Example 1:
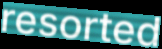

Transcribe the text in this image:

resorted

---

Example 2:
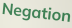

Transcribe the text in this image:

Negation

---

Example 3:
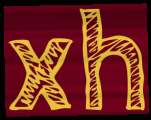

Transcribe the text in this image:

xh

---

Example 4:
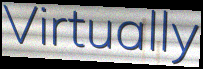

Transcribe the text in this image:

Virtually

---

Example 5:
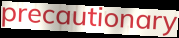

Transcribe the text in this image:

precautionary